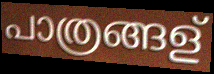
പാത്രങ്ങള്